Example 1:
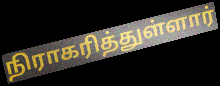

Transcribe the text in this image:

நிராகரித்துள்ளார்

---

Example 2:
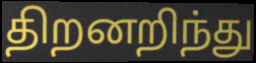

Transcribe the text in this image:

திறனறிந்து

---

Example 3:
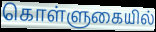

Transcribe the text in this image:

கொள்ளுகையில்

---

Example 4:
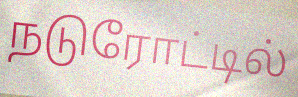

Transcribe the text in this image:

நடுரோட்டில்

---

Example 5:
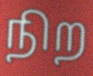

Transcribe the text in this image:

நிற